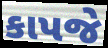
કાપજે